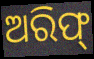
ଅରିଫ୍